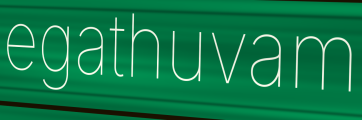
egathuvam